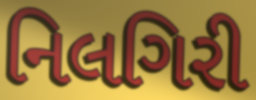
નિલગિરી